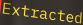
Extracted